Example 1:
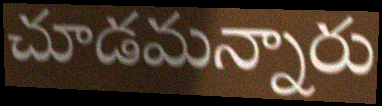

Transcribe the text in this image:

చూడమన్నారు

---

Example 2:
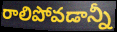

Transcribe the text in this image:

రాలిపోవడాన్నీ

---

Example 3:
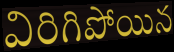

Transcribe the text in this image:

విరిగిపోయిన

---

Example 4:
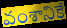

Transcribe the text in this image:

వంశానికే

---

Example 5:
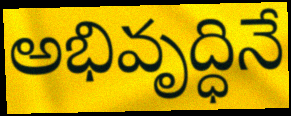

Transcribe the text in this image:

అభివృద్ధినే